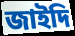
জাইদি